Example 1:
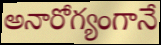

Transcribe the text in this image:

అనారోగ్యంగానే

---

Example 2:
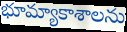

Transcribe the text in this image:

భూమ్యాకాశాలను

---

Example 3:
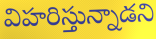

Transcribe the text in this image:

విహరిస్తున్నాడని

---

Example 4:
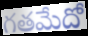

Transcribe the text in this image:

గతమేదో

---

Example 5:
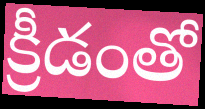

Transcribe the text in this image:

క్రీడంతో